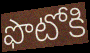
ఫొటోకి